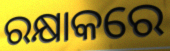
ରକ୍ଷାକରେ